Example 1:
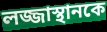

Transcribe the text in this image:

লজ্জাস্থানকে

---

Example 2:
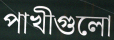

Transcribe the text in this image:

পাখীগুলো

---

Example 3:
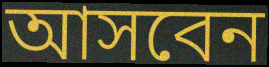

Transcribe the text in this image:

আসবেন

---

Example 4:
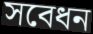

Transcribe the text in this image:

সবেধন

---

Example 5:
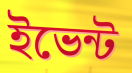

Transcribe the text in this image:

ইভেন্ট